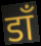
डॉँ